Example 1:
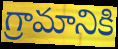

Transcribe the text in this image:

గ్రామానికి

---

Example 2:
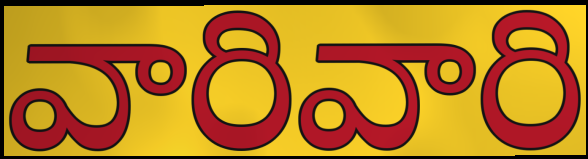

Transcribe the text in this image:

వారివారి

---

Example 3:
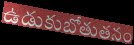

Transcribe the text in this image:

ఉడుకుబోతుతనం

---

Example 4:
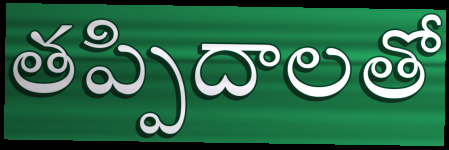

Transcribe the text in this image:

తప్పిదాలతో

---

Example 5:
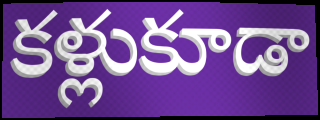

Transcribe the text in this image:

కళ్లుకూడా